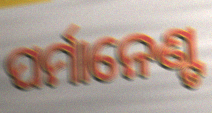
ପର୍ମାନେଣ୍ଟ